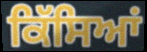
ਕਿੱਸਿਆਂ